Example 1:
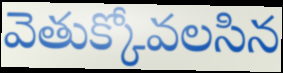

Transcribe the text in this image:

వెతుక్కోవలసిన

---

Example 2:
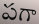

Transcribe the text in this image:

పగా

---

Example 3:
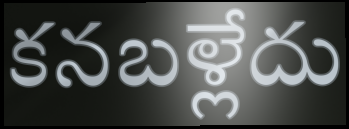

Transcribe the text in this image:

కనబళ్లేదు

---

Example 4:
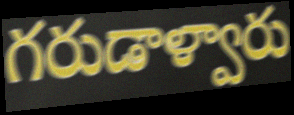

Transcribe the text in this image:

గరుడాళ్వారు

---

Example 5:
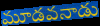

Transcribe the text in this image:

మూడవనాడు